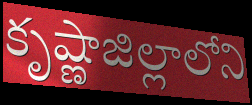
కృష్ణాజిల్లాలోని